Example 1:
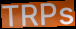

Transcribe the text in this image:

TRPs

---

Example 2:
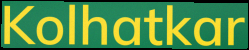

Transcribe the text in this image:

Kolhatkar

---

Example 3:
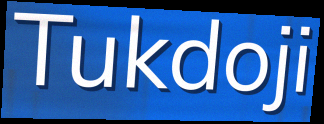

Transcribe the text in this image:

Tukdoji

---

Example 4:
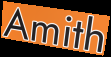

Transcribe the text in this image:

Amith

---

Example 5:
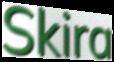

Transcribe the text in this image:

Skira